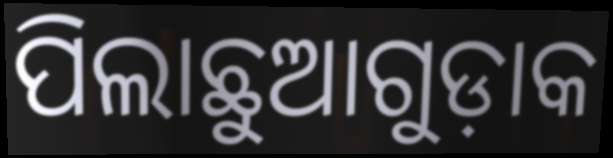
ପିଲାଛୁଆଗୁଡ଼ାକ